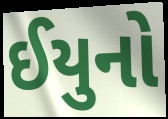
ઈયુનો